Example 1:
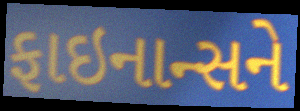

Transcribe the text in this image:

ફાઇનાન્સને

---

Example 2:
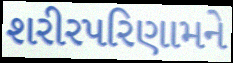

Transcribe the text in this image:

શરીરપરિણામને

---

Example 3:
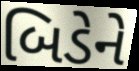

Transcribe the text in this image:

બિડેને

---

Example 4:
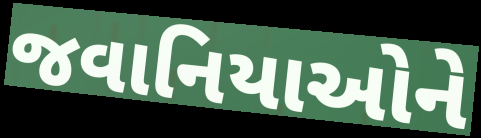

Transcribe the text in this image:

જવાનિયાઓને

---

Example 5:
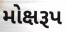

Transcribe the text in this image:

મોક્ષરૂપ